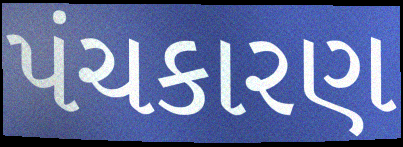
પંચકારણ